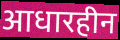
आधारहीन